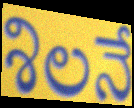
శిలనే